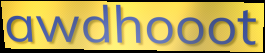
awdhooot